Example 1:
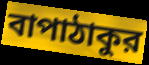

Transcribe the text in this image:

বাপাঠাকুর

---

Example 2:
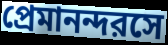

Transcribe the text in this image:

প্রেমানন্দরসে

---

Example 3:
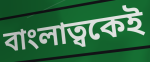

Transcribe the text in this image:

বাংলাত্বকেই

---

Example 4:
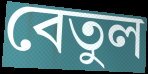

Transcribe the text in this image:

বেতুল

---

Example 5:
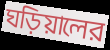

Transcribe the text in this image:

ঘড়িয়ালের